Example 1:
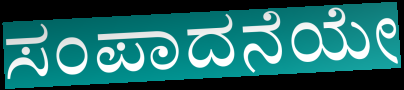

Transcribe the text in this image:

ಸಂಪಾದನೆಯೇ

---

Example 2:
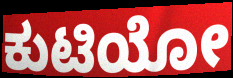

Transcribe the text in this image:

ಕುಟಿಯೋ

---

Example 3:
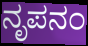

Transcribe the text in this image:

ನೃಪನಂ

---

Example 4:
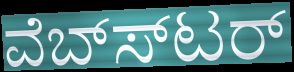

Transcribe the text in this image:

ವೆಬ್ಸ್‍ಟರ್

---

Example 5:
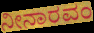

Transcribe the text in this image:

ನೀನಾರವಂ